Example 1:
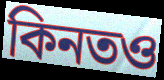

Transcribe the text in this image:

কিনতও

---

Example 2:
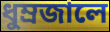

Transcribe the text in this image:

ধুম্রজালে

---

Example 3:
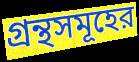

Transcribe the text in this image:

গ্রন্থসমূহের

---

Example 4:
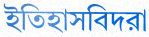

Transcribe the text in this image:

ইতিহাসবিদরা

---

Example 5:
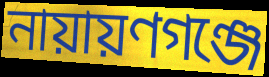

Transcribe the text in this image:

নায়ায়ণগঞ্জে